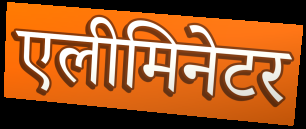
एलीमिनेटर